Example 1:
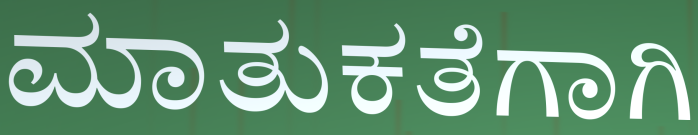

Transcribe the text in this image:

ಮಾತುಕತೆಗಾಗಿ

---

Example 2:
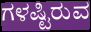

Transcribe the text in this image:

ಗಳಷ್ಟಿರುವ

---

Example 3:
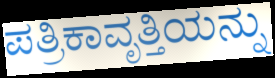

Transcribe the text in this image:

ಪತ್ರಿಕಾವೃತ್ತಿಯನ್ನು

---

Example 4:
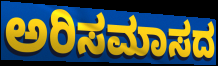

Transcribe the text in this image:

ಅರಿಸಮಾಸದ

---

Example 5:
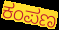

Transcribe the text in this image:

ಕಂಪಣ